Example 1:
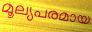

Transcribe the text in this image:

മൂല്യപരമായ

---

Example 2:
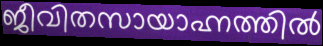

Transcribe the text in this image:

ജീവിതസായാഹ്നത്തിൽ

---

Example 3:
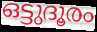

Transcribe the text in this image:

ഒട്ടുദൂരം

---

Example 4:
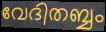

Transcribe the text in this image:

വേദിതബ്ബം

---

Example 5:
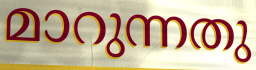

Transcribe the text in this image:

മാറുന്നതു